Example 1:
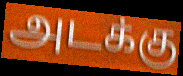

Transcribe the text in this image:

அடக்கு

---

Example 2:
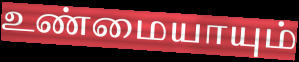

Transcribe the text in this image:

உண்மையாயும்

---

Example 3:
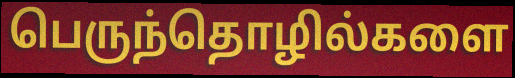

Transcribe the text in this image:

பெருந்தொழில்களை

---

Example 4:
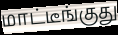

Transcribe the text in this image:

மாட்டீங்குது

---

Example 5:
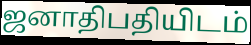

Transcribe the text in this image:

ஜனாதிபதியிடம்